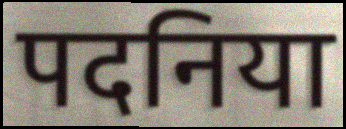
पदनिया